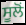
ਸੂਲੋਂ